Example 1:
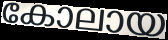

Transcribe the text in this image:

കോലായ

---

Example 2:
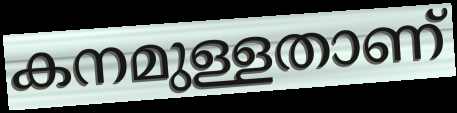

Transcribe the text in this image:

കനമുള്ളതാണ്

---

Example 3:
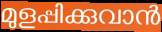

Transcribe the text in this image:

മുളപ്പിക്കുവാൻ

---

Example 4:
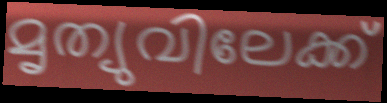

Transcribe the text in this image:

മൃത്യുവിലേക്ക്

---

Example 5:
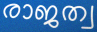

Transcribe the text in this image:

രാജത്വ